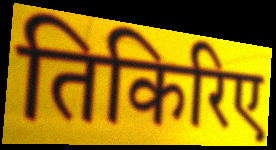
तिकिरिए